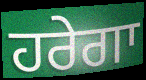
ਹਰੇਗਾ